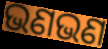
ଭଣଭଣ